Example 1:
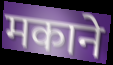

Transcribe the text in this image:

मकाने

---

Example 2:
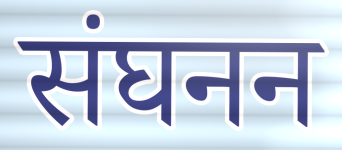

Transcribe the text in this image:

संघनन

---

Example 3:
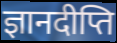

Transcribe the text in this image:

ज्ञानदीप्ति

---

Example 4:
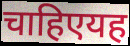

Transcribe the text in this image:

चाहिएयह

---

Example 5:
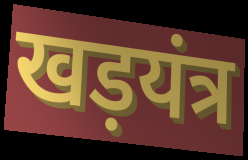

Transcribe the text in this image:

खड़यंत्र